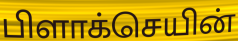
பிளாக்செயின்